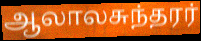
ஆலாலசுந்தரர்